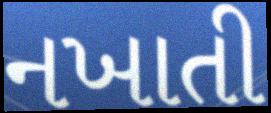
નખાતી